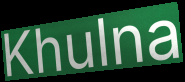
Khulna